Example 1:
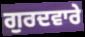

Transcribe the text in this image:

ਗੁਰਦਵਾਰੇ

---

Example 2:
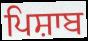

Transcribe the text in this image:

ਪਿਸ਼ਾਬ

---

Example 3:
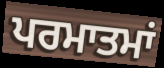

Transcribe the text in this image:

ਪਰਮਾਤਮਾਂ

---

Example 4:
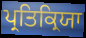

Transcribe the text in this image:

ਪ੍ਰਤਿਕ੍ਰਿਯਾ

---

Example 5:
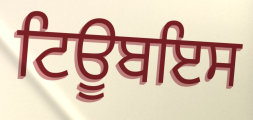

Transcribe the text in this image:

ਟਿਊਬਇਸ